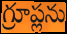
గ్రూప్లను